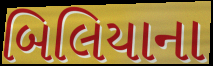
બિલિયાના